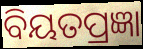
ବିୟତପ୍ରଜ୍ଞା